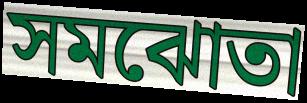
সমঝোতা